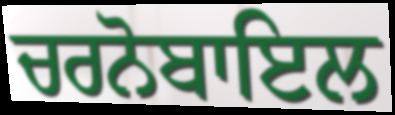
ਚਰਨੋਬਾਇਲ